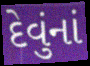
દેવુંનાં